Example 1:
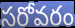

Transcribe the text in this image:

సరోవరం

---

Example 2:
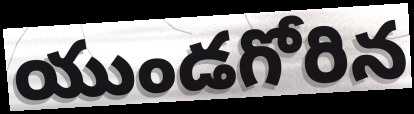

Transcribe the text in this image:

యుండగోరిన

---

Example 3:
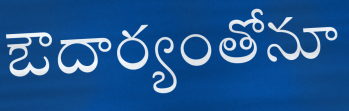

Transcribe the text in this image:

ఔదార్యంతోనూ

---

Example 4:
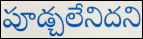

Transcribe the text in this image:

పూడ్చలేనిదని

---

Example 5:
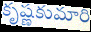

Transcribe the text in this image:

కృష్ణకుమారి